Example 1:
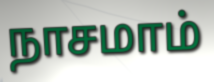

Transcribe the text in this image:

நாசமாம்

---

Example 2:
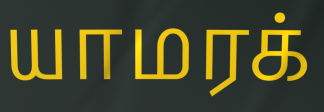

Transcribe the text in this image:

யாமரக்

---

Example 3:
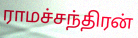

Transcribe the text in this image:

ராமச்சந்திரன்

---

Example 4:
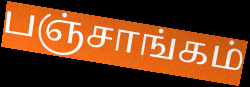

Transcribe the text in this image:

பஞ்சாங்கம்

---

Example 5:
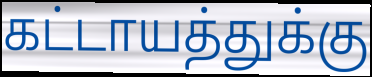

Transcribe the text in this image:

கட்டாயத்துக்கு